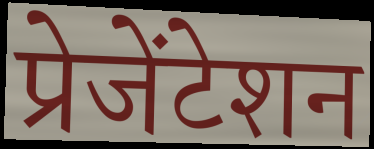
प्रेजेंटेशन